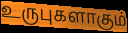
உருபுகளாகும்